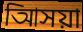
আিসয়া